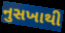
નુસખાથી